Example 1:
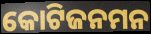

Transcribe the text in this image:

କୋଟିଜନମନ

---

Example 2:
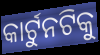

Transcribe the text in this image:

କାର୍ଟୁନଟିକୁ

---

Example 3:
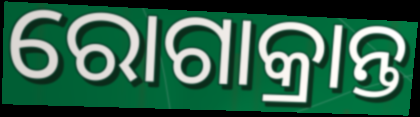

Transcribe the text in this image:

ରୋଗାକ୍ରାନ୍ତ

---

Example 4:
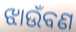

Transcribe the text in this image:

ଝାଉଁବଣ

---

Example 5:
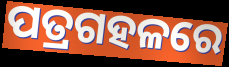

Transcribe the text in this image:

ପତ୍ରଗହଳରେ